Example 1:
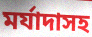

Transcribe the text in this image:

মর্যাদাসহ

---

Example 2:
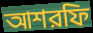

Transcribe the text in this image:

আশরফি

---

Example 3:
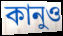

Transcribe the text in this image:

কানুও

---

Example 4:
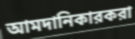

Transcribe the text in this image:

আমদানিকারকরা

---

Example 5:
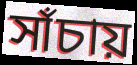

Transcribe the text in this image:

সাঁচায়